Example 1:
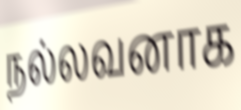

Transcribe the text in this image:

நல்லவனாக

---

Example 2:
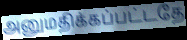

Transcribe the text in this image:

அனுமதிக்கப்பட்டதே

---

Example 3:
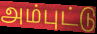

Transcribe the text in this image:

அம்புட்டு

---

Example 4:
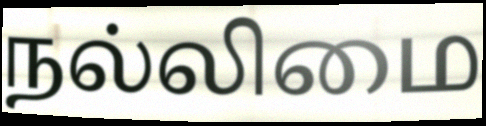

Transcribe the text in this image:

நல்லிமை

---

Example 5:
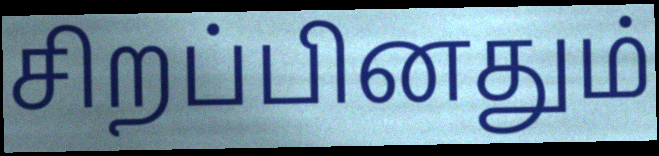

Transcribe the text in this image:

சிறப்பினதும்